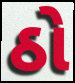
ઠો